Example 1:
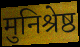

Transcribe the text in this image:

मुनिश्रेष्ठ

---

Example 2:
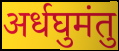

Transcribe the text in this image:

अर्धघुमंतु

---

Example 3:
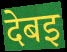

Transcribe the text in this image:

देबइ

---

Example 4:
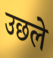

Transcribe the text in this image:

उछले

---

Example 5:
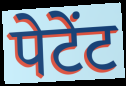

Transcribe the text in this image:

पेटेंट